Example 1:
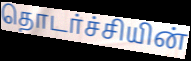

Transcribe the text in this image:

தொடர்ச்சியின்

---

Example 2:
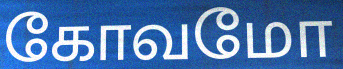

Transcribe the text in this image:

கோவமோ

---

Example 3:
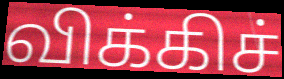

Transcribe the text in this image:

விக்கிச்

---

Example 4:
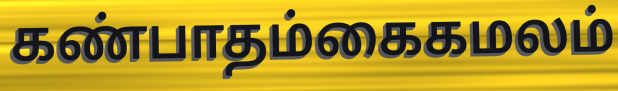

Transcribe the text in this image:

கண்பாதம்கைகமலம்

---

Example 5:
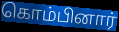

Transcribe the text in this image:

கொம்பினார்